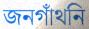
জনগাঁথনি